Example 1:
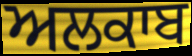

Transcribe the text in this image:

ਅਲਕਾਬ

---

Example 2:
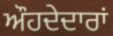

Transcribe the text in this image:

ਔਹਦੇਦਾਰਾਂ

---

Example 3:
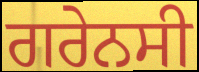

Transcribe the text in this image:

ਗਰੇਨਸੀ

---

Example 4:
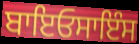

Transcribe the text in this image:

ਬਾਇਓਸਾਇੰਸ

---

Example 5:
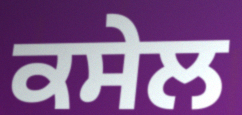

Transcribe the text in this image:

ਕਸੇਲ